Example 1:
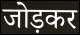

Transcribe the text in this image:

जोड़कर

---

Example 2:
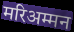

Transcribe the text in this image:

मरिअम्मन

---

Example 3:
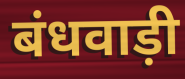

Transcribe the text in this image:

बंधवाड़ी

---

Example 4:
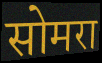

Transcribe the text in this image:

सोमरा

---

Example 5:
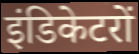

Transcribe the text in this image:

इंडिकेटरों